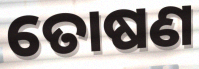
ତୋଷଣ